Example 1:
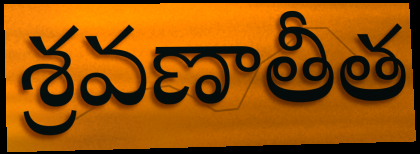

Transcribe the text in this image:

శ్రవణాతీత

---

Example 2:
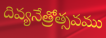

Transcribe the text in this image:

దివ్యనేత్రోత్సవము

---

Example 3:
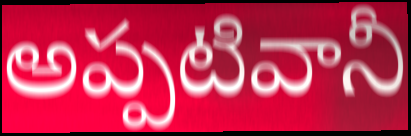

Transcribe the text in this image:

అప్పటివానీ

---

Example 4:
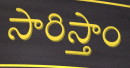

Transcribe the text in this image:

సారిస్తాం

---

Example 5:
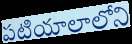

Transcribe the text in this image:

పటియాలాలోని